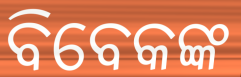
ବିବେକଙ୍କ